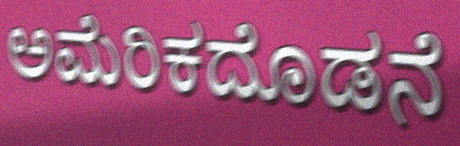
ಅಮೆರಿಕದೊಡನೆ